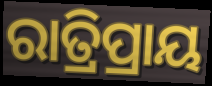
ରାତ୍ରିପ୍ରାୟ